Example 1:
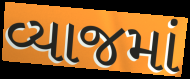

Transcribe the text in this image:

વ્યાજમાં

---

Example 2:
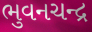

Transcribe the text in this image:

ભુવનચન્દ્ર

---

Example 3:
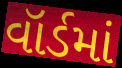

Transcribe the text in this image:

વૉર્ડમાં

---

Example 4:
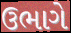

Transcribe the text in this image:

ઉભાગે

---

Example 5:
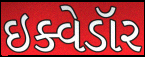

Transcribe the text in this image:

ઇક્વેડૉર